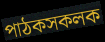
পাঠকসকলক